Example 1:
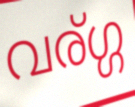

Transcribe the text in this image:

വര്ഗ്ഗ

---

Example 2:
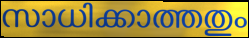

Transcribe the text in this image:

സാധിക്കാത്തതും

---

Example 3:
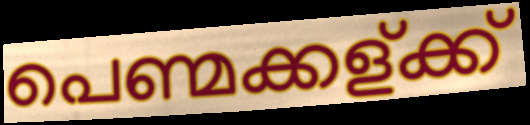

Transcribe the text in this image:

പെണ്മക്കള്ക്ക്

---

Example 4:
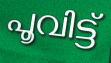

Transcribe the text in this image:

പൂവിട്ട്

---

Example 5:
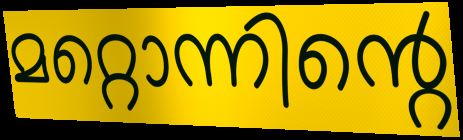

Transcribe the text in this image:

മറ്റൊന്നിന്റെ